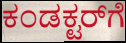
ಕಂಡಕ್ಟರ್‌ಗೆ